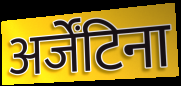
अर्जेंटिना